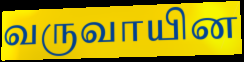
வருவாயின